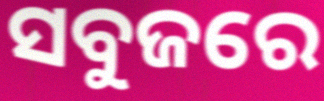
ସବୁଜରେ